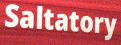
Saltatory